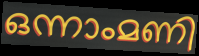
ഒന്നാംമണി